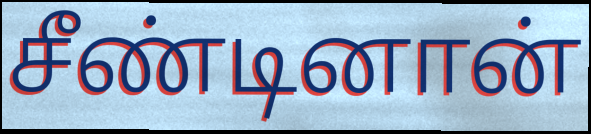
சீண்டினான்